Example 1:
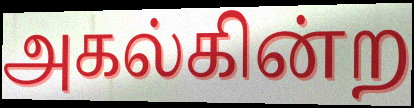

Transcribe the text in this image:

அகல்கின்ற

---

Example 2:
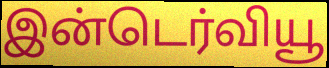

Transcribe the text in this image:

இன்டெர்வியூ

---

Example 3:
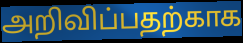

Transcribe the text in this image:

அறிவிப்பதற்காக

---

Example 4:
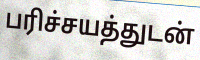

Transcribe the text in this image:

பரிச்சயத்துடன்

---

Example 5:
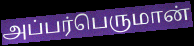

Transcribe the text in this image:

அப்பர்பெருமான்